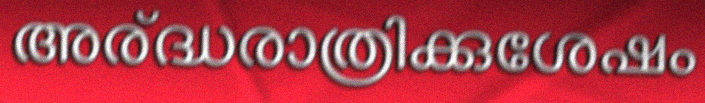
അര്ദ്ധരാത്രിക്കുശേഷം